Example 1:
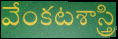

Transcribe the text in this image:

వేంకటశాస్త్రి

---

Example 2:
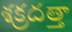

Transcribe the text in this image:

శక్రదత్తా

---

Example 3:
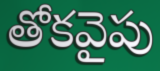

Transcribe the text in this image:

తోకవైపు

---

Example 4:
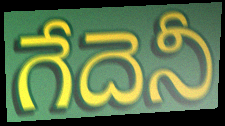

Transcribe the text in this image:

గేదెనీ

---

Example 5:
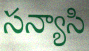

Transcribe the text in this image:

సన్యాసి